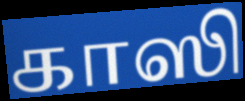
காஸி